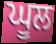
ਘੂਲ